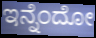
ಇನ್ನೆಂದೋ